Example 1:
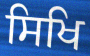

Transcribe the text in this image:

ਸਿਖਿ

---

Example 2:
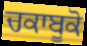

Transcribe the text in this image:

ਚਕਾਬੂਕੋ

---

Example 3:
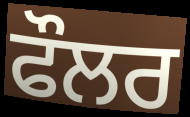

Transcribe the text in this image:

ਫੌਲਰ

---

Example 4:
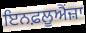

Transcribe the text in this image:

ਇਨਫ਼ਲੂਐਂਜ਼ਾ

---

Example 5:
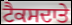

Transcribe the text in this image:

ਟੈਕਸਦਾਤੇ